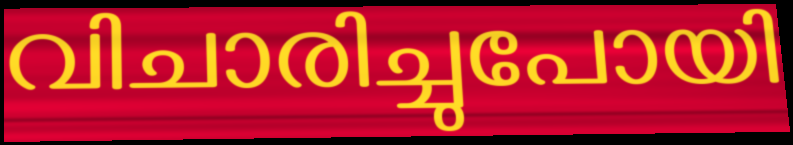
വിചാരിച്ചുപോയി